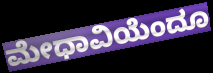
ಮೇಧಾವಿಯೆಂದೂ